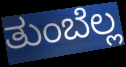
ತುಂಬೆಲ್ಲ